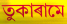
তুকাৰামে